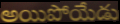
అయిపోయేడు